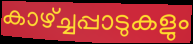
കാഴ്ച്ചപ്പാടുകളും